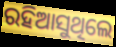
ରହିଆସୁଥିଲେ